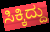
ಸಿಕ್ಕಿದ್ದು